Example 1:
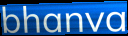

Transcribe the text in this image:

bhanva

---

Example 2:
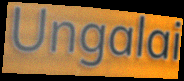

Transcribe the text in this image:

Ungalai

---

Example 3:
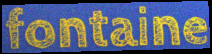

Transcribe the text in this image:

fontaine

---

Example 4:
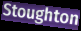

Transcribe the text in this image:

Stoughton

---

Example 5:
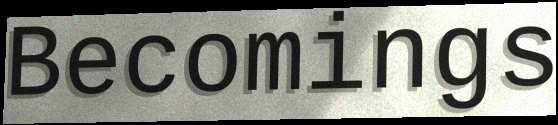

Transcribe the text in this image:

Becomings